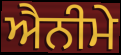
ਐਨੀਮੇ